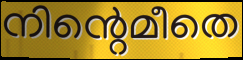
നിന്റെമീതെ